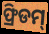
ଫ୍ରିଡମ୍